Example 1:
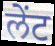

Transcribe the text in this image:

लेंट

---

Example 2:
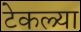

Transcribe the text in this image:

टेकल्या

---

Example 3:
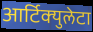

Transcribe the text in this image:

आर्टिक्युलेटा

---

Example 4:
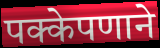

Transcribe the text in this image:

पक्केपणाने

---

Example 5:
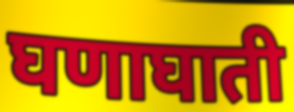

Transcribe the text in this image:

घणाघाती